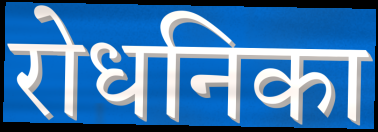
रोधनिका